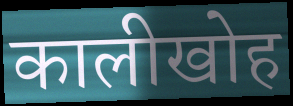
कालीखोह